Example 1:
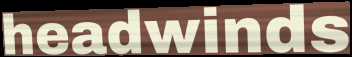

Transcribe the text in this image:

headwinds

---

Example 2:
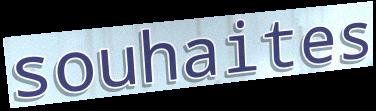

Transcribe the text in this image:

souhaites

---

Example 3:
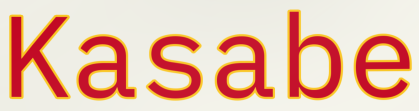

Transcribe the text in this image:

Kasabe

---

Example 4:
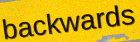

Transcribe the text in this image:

backwards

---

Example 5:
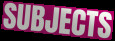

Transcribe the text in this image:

SUBJECTS